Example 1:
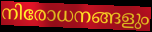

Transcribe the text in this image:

നിരോധനങ്ങളും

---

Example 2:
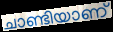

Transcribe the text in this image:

ചാണ്ടിയാണ്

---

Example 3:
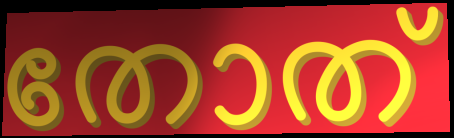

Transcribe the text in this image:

തോത്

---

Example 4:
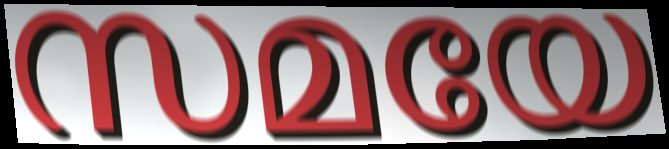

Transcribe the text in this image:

സമയേ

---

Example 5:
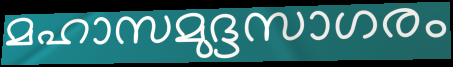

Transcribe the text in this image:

മഹാസമുദ്ദസാഗരം